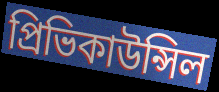
প্রিভিকাউন্সিল